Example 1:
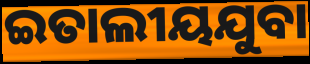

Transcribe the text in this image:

ଇତାଲୀୟଯୁବା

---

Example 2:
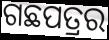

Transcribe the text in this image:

ଗଛପତ୍ରର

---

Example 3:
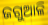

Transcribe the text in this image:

ଜଗୁଆଳି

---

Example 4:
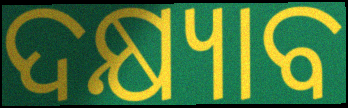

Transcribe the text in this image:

ଦକ୍ଷ୍ୟାବ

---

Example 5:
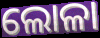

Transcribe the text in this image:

ଲୋଳା